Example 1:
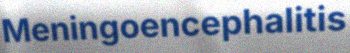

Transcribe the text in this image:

Meningoencephalitis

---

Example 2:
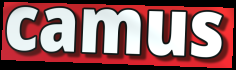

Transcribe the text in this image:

camus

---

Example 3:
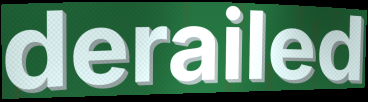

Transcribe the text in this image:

derailed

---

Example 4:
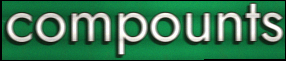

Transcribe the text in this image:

compounts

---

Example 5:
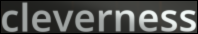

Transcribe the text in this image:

cleverness